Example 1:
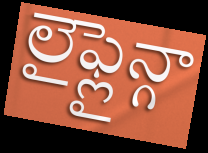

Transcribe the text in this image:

లైఫ్లైన్గా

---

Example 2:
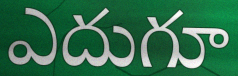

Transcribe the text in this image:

ఎదుగూ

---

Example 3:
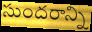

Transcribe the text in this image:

సుందరాన్ని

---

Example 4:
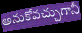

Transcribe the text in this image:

అనుకోవచ్చుగానీ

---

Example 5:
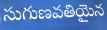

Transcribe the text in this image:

సుగుణవతియైన